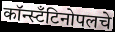
कॉन्स्टँटिनोपलचे